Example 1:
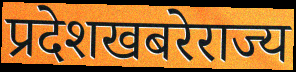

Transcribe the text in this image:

प्रदेशखबरेराज्य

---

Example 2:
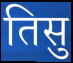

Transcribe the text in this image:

तिसु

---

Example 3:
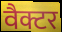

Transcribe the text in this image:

वैक्टर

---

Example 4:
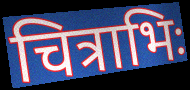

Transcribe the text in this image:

चित्राभिः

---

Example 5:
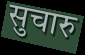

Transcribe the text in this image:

सुचारु